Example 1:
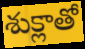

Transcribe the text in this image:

శుక్లాతో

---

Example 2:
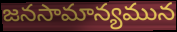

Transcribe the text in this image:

జనసామాన్యమున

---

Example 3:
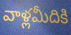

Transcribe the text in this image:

వాళ్లమీదికి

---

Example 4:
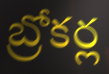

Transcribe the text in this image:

బ్రోకర్ల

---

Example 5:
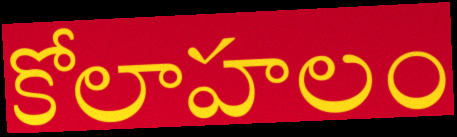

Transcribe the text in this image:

కోలాహలం